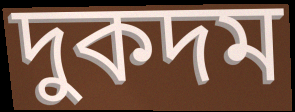
দুকদম